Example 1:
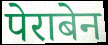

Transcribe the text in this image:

पेराबेन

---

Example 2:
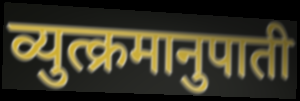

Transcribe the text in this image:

व्युत्क्रमानुपाती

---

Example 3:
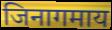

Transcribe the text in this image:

जिनागमाय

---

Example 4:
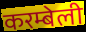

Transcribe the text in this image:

करम्बेली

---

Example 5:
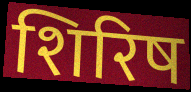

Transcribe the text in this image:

शिरिष